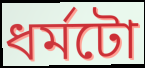
ধৰ্মটো